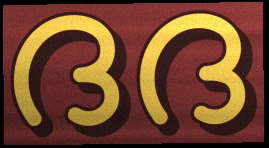
ദദ